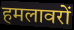
हमलावरों